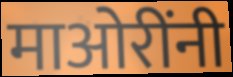
माओरींनी